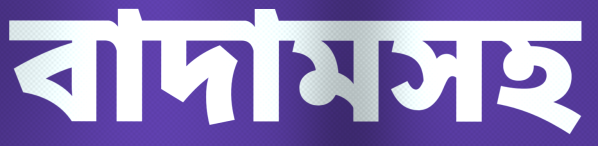
বাদামসহ